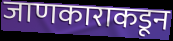
जाणकाराकडून